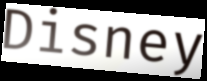
Disney